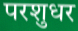
परशुधर